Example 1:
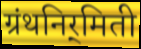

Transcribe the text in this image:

ग्रंथनिर्मिती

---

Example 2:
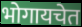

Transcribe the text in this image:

भोगायचेत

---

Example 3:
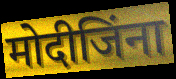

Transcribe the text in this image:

मोदीजिंना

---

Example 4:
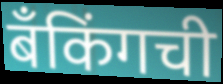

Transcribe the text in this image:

बँकिंगची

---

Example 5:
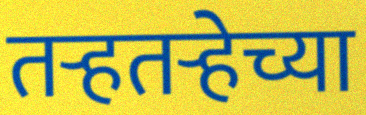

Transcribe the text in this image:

तऱ्हतऱ्हेच्या